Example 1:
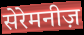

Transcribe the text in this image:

सेरेमनीज़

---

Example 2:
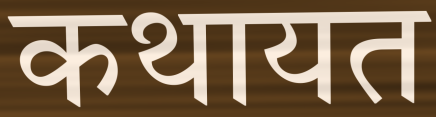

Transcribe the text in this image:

कथायत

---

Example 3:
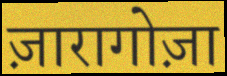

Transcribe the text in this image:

ज़ारागोज़ा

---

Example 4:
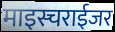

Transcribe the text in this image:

माइस्चराईजर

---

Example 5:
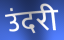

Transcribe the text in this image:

उंदरी